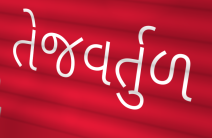
તેજવર્તુળ